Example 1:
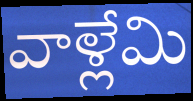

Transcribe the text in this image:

వాళ్లేమి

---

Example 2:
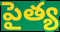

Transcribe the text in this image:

పైత్య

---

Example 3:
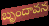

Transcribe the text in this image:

బృందావన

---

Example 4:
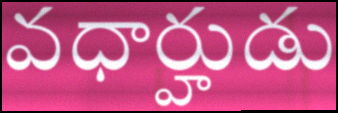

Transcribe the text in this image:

వధార్హుడు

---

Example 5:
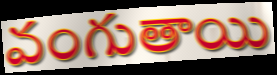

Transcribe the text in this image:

వంగుతాయి